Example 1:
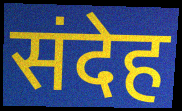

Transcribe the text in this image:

संदेह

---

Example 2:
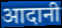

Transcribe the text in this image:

आदानी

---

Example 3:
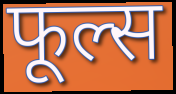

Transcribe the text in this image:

फूल्स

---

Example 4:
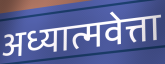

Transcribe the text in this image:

अध्यात्मवेत्ता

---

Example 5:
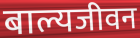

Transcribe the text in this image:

बाल्यजीवन